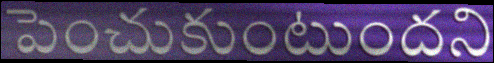
పెంచుకుంటుందని